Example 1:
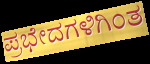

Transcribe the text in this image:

ಪ್ರಭೇದಗಳಿಗಿಂತ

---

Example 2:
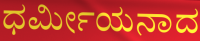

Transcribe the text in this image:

ಧರ್ಮೀಯನಾದ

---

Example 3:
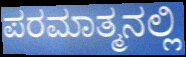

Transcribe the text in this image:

ಪರಮಾತ್ಮನಲ್ಲಿ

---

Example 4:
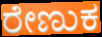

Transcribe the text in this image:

ರೇಣುಕ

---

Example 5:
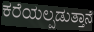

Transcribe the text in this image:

ಕರೆಯಲ್ಪಡುತ್ತಾನೆ